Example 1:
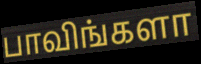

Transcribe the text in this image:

பாவிங்களா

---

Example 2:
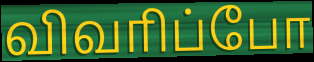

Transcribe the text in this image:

விவரிப்போ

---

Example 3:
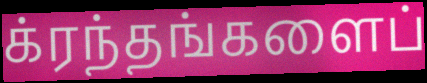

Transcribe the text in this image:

க்ரந்தங்களைப்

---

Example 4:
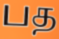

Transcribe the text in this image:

பத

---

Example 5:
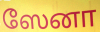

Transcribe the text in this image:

ஸேனா